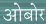
ओबोर